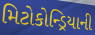
મિટોકોન્ડ્રિયાની